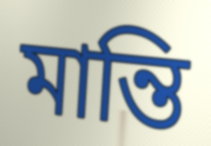
মান্তি